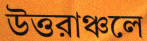
উত্তরাঞ্চলে